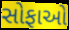
સોફાઓ